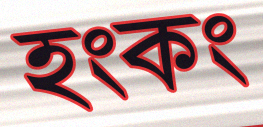
হংকং